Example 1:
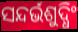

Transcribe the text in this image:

ସନ୍ଦର୍ଭଶୁଦ୍ଧିଂ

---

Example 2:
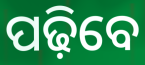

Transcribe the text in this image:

ପଢ଼ିବେ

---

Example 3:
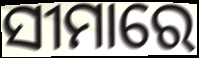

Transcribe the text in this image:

ସୀମାରେ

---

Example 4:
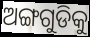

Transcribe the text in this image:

ଅଙ୍ଗଗୁଡିକୁ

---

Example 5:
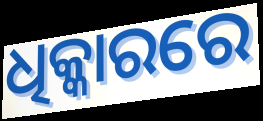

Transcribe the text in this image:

ଧିକ୍କାରରେ